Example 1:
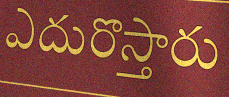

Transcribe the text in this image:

ఎదురొస్తారు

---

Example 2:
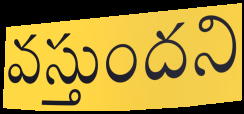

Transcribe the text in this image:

వస్తుందని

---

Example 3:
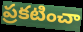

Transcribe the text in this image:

ప్రకటించా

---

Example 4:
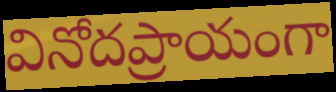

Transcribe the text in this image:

వినోదప్రాయంగా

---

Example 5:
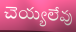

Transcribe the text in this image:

చెయ్యలేవు